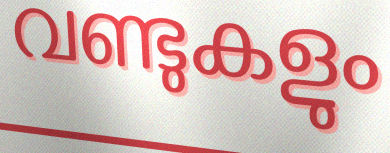
വണ്ടുകളും